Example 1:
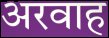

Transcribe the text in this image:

अरवाह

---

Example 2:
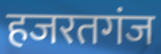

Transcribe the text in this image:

हजरतगंज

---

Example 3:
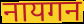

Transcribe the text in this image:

नायगन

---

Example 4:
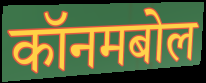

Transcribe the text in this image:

कॉनमबोल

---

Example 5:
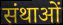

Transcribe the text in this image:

संथाओं